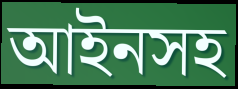
আইনসহ